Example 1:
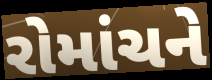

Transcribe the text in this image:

રોમાંચને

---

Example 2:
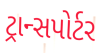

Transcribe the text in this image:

ટ્રાન્સપોર્ટર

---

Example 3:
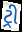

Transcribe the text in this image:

ટ્રી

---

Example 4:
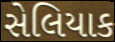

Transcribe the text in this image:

સેલિયાક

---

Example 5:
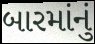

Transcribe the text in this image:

બારમાંનું